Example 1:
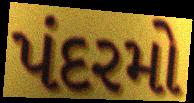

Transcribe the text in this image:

પંદરમો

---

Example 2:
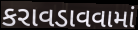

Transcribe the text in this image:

કરાવડાવવામાં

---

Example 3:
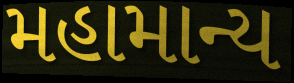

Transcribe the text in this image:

મહામાન્ય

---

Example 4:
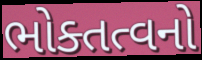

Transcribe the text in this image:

ભોક્તત્વનો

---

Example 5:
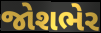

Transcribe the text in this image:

જોશભેર